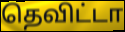
தெவிட்டா